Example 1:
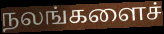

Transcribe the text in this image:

நலங்களைச்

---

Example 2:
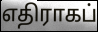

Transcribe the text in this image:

எதிராகப்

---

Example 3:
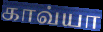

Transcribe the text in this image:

காவ்யா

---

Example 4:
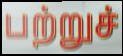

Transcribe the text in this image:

பற்றுச்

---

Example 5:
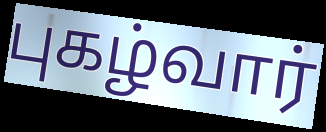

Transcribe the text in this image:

புகழ்வார்